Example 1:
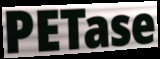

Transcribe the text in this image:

PETase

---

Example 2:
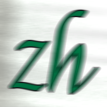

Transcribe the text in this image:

zh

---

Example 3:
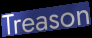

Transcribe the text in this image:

Treason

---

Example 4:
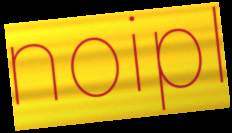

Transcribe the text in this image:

noipl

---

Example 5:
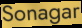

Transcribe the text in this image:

Sonagar